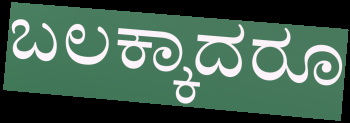
ಬಲಕ್ಕಾದರೂ